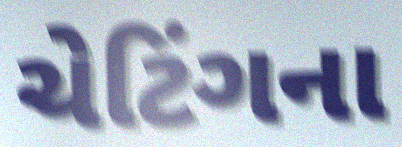
ચેટિંગના